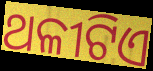
ଥଳୀଟିଏ